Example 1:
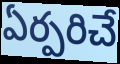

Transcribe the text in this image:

ఏర్పరిచే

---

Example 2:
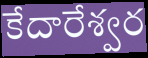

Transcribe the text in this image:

కేదారేశ్వర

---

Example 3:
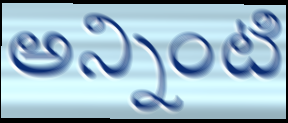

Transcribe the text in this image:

అన్నింటి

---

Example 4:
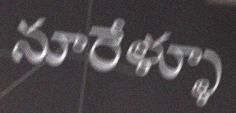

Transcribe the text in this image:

నూరేళ్ళూ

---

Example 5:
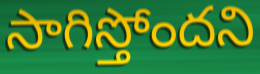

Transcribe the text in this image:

సాగిస్తోందని